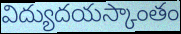
విద్యుదయస్కాంతం